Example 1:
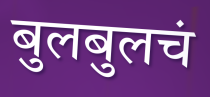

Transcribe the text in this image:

बुलबुलचं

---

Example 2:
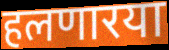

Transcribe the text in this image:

हलणारया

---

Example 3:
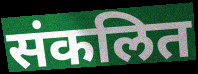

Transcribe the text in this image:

संकलित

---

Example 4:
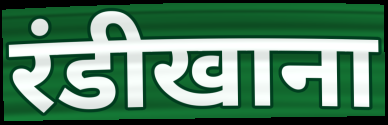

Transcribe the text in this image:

रंडीखाना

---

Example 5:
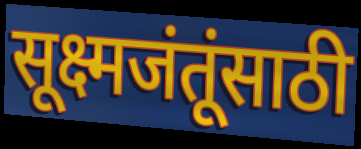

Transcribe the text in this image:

सूक्ष्मजंतूंसाठी